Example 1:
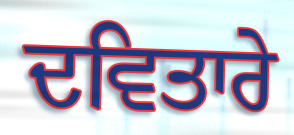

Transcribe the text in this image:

ਦਵਿਤਾਰੇ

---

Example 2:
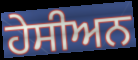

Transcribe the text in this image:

ਹੇਸੀਅਨ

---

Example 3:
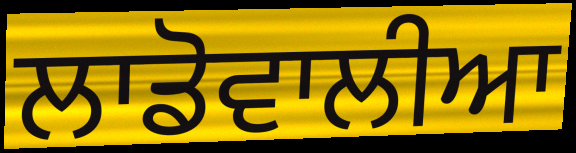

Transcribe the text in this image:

ਲਾਡੋਵਾਲੀਆ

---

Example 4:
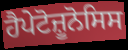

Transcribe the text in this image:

ਹੈਪੇਟੋਜ਼ੂਨੋਸਿਸ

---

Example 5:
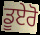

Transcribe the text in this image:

ਡੂਏਰੋ